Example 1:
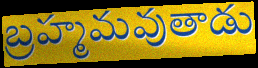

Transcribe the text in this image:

బ్రహ్మమవుతాడు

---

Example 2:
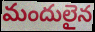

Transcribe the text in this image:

మందులైన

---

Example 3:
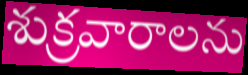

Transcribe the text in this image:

శుక్రవారాలను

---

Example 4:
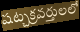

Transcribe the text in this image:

షట్చక్రవర్తులలో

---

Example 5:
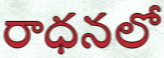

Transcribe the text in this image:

రాధనలో